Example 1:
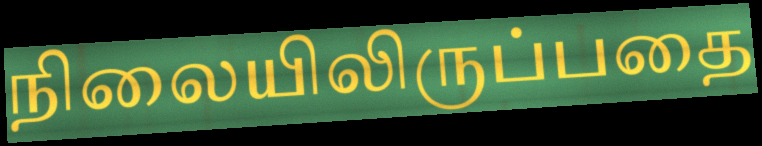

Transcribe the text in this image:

நிலையிலிருப்பதை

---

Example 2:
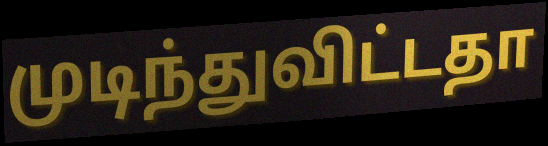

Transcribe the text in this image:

முடிந்துவிட்டதா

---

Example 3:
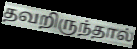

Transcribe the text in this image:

தவறிருந்தால்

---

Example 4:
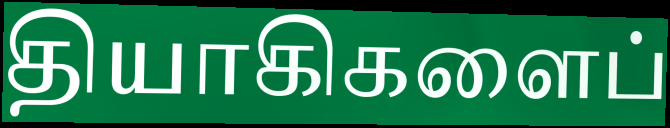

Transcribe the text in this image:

தியாகிகளைப்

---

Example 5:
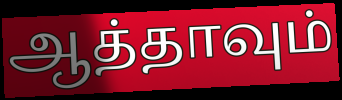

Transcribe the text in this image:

ஆத்தாவும்